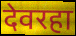
देवरहा